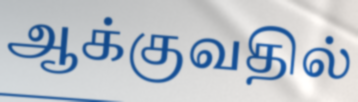
ஆக்குவதில்